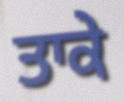
ਤਾਕੇ